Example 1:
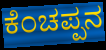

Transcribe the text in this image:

ಕೆಂಚಪ್ಪನ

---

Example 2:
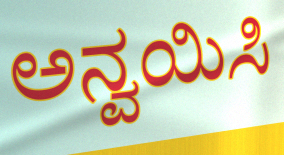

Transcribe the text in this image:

ಅನ್ವಯಿಸಿ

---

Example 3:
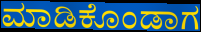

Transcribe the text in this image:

ಮಾಡಿಕೊಂಡಾಗ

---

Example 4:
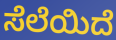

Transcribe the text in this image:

ಸೆಲೆಯಿದೆ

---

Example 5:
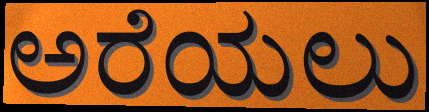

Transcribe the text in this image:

ಅರೆಯಲು